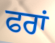
ਫਰਾਂ